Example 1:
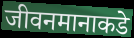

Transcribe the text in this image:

जीवनमानाकडे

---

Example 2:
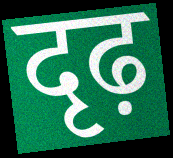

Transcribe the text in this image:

दृढ़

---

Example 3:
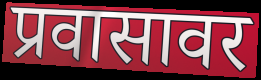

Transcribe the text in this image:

प्रवासावर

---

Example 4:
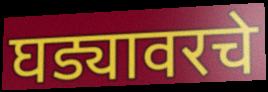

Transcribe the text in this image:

घड्यावरचे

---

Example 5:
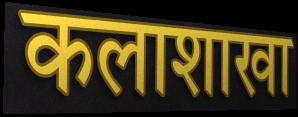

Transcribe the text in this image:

कलाशाखा